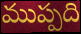
ముప్పది